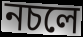
নচলে